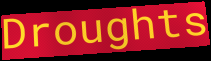
Droughts